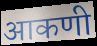
आकणी